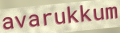
avarukkum